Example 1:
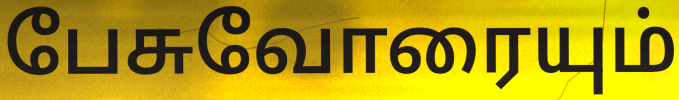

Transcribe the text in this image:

பேசுவோரையும்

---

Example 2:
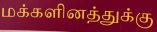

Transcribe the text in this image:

மக்களினத்துக்கு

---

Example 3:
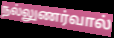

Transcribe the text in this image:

நல்லுணர்வால்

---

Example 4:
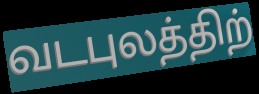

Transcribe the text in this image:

வடபுலத்திற்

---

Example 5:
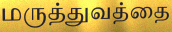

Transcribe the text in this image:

மருத்துவத்தை